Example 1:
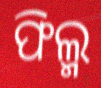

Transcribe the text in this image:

ଫିଲ୍ମ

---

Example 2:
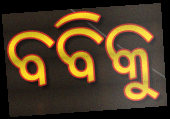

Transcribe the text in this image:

ବବିକୁ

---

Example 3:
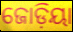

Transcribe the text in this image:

ଜୋଡ଼ିୟା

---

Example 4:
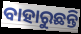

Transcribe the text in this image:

ବାହାରୁଛନ୍ତି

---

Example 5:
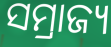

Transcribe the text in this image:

ସମ୍ରାଜ୍ୟ